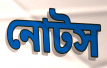
নোটস